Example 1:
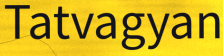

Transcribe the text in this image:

Tatvagyan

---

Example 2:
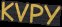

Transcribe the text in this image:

KVPY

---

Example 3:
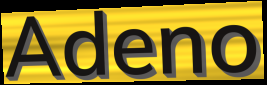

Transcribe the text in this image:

Adeno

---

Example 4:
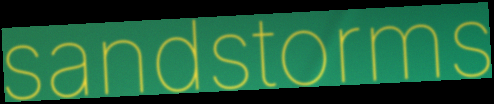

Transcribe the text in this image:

sandstorms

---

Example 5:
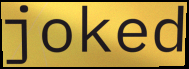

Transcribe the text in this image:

joked